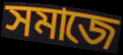
সমাজে